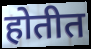
होतीत